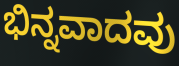
ಭಿನ್ನವಾದವು